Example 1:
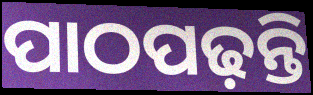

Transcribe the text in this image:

ପାଠପଢ଼ନ୍ତି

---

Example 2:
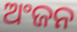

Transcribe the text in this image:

ଅଂଜନ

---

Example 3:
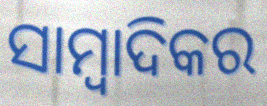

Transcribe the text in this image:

ସାମ୍ବାଦିକର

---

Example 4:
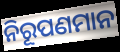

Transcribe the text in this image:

ନିରୂପଣମାନ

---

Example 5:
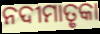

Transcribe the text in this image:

ନଦୀମାତୃକା